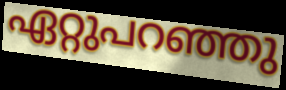
ഏറ്റുപറഞ്ഞു